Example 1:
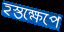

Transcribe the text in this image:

হস্তক্ষেপে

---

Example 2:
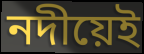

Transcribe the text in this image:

নদীয়েই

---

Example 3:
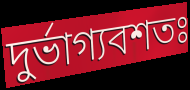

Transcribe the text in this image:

দুৰ্ভাগ্যবশতঃ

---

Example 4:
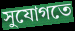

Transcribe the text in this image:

সুযোগতে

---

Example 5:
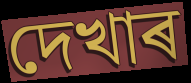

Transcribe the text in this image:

দেখাৰ